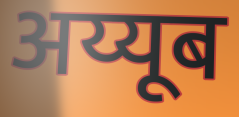
अय्यूब